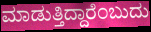
ಮಾಡುತ್ತಿದ್ದಾರೆಂಬುದು